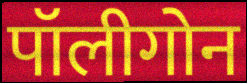
पॉलीगोन